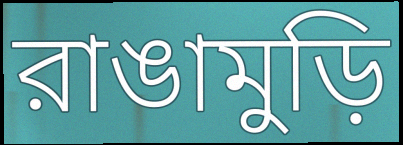
রাঙামুড়ি